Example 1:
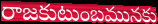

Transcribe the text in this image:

రాజకుటుంబమునకు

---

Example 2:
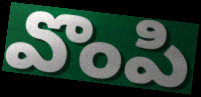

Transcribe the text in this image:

వొంపి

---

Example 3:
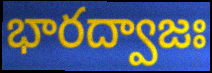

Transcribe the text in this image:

భారద్వాజః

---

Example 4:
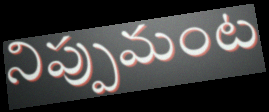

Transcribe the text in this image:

నిప్పుమంట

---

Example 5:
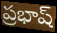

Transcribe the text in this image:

ప్రభాష్